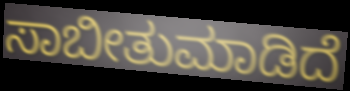
ಸಾಬೀತುಮಾಡಿದೆ